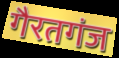
गैरतगंज